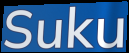
Suku